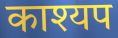
काश्यप